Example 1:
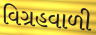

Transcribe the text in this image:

વિગ્રહવાળી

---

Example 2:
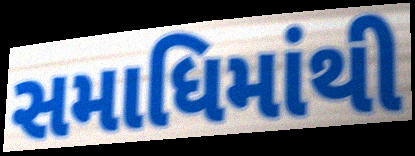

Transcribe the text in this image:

સમાધિમાંથી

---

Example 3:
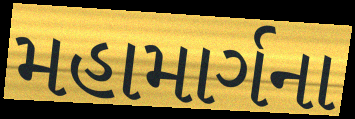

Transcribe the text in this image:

મહામાર્ગના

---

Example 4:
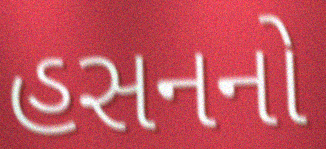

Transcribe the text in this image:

હસનનો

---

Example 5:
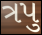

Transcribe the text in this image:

ત્રપુ